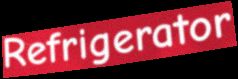
Refrigerator